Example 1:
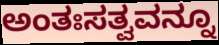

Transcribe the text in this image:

ಅಂತಃಸತ್ವವನ್ನೂ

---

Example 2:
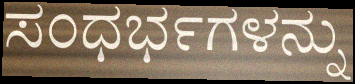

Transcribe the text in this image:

ಸಂಧರ್ಭಗಳನ್ನು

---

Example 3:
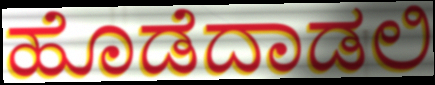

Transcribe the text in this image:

ಹೊಡೆದಾಡಲಿ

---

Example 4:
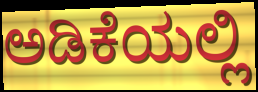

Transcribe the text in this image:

ಅಡಿಕೆಯಲ್ಲಿ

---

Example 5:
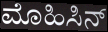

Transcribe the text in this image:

ಮೊಹಿಸಿನ್